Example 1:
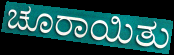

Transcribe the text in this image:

ಚೂರಾಯಿತು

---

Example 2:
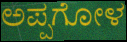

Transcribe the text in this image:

ಅಪ್ಪಗೋಳ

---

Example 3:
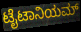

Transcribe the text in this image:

ಟೈಟಾನಿಯಮ್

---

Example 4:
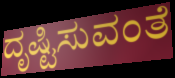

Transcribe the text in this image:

ದೃಷ್ಟಿಸುವಂತೆ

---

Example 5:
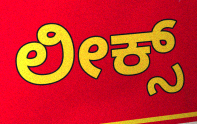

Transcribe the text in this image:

ಲೀಕ್ಸ್